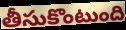
తీసుకొంటుంది